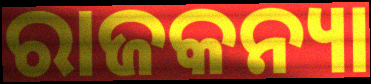
ରାଜକନ୍ୟା